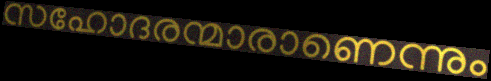
സഹോദരന്മാരാണെന്നും